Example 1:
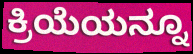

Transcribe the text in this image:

ಕ್ರಿಯೆಯನ್ನೂ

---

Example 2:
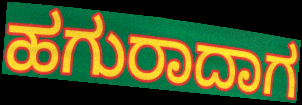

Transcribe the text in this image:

ಹಗುರಾದಾಗ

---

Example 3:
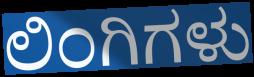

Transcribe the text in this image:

ಲಿಂಗಿಗಳು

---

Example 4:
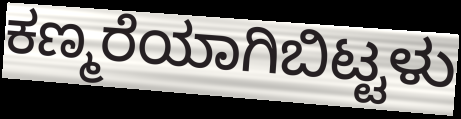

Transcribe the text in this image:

ಕಣ್ಮರೆಯಾಗಿಬಿಟ್ಟಳು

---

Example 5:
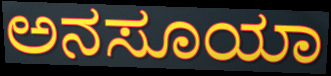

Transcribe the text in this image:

ಅನಸೂಯಾ